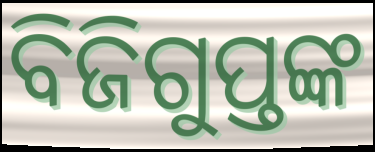
ବିଜିଗୁପ୍ତଙ୍କ